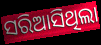
ସରିଆସିଥିଲା